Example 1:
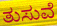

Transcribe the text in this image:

ತುಸುವೆ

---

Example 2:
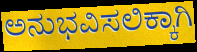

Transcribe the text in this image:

ಅನುಭವಿಸಲಿಕ್ಕಾಗಿ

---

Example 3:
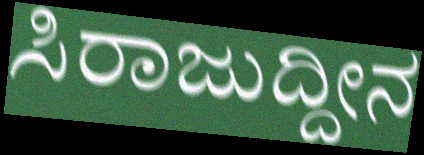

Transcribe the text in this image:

ಸಿರಾಜುದ್ದೀನ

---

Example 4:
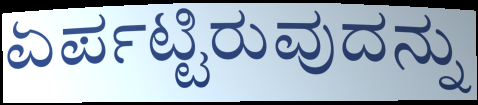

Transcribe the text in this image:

ಏರ್ಪಟ್ಟಿರುವುದನ್ನು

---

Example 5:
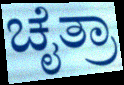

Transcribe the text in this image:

ಚೈತ್ರಾ